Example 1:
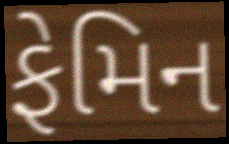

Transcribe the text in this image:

ફેમિન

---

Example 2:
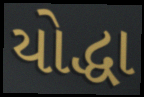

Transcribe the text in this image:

યોદ્ધા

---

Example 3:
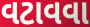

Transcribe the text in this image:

વટાવવા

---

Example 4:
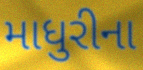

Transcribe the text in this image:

માધુરીના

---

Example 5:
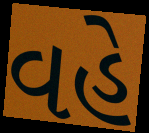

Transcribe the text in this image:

વહે